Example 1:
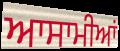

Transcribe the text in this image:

ਆਸਾਮੀਆਂ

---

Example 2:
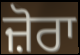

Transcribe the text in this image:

ਜ਼ੋਰਾ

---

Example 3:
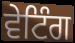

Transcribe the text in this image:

ਵੇਟਿੰਗ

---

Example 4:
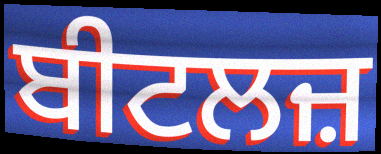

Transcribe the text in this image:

ਬੀਟਲਜ਼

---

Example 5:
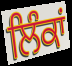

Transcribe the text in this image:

ਲਿੰਕਾਂ